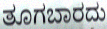
ತೂಗಬಾರದು